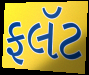
ફલૅટ